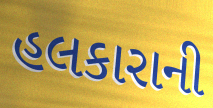
હલકારાની